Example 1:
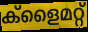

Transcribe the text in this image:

ക്ളൈമറ്റ്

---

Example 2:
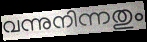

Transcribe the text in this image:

വന്നുനിന്നതും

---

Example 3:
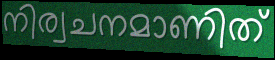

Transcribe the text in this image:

നിര്വചനമാണിത്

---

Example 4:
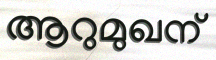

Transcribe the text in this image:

ആറുമുഖന്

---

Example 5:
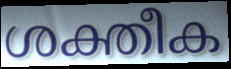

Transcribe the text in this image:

ശക്തീക